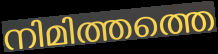
നിമിത്തത്തെ